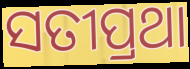
ସତୀପ୍ରଥା